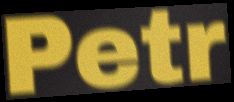
Petr